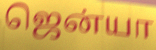
ஜென்யா